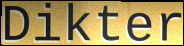
Dikter